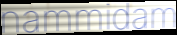
nammidam